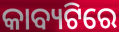
କାବ୍ୟଟିରେ